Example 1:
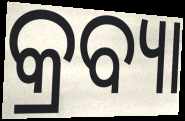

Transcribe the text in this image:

କ୍ରବ୍ୟା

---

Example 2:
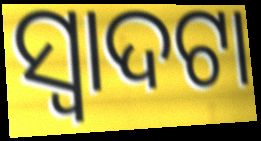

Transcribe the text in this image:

ସ୍ଵାଦଟା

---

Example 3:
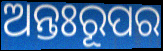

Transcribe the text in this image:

ଅନ୍ତଃରୂପର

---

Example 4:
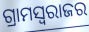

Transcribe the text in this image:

ଗ୍ରାମସ୍ୱରାଜର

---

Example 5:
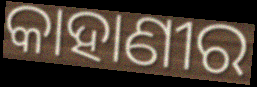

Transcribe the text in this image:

କାହାଣୀର